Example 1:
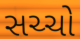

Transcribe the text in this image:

સચ્ચો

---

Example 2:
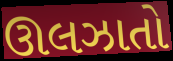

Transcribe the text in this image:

ઊલઝાતો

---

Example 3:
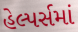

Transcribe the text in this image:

હેલ્પર્સમાં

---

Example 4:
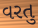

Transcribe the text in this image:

વરતુ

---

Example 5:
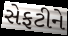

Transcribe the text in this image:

સેફટીને